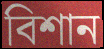
বিশান